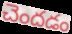
చెందడం